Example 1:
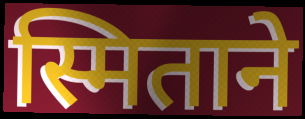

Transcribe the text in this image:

स्मिताने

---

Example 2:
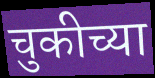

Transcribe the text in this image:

चुकीच्या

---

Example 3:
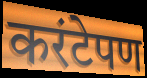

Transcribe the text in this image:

करंटेपण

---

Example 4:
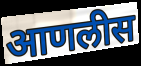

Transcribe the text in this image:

आणलीस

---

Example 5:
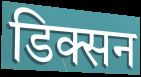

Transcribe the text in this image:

डिक्सन